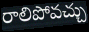
రాలిపోవచ్చు